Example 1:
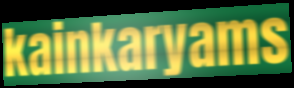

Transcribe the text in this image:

kainkaryams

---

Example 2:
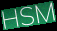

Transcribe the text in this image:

HSM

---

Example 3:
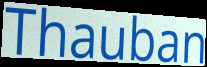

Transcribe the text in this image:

Thauban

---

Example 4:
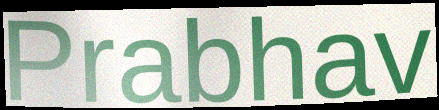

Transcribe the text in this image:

Prabhav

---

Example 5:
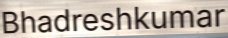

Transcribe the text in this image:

Bhadreshkumar